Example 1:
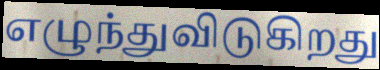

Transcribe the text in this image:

எழுந்துவிடுகிறது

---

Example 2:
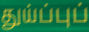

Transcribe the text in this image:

துய்ப்புப்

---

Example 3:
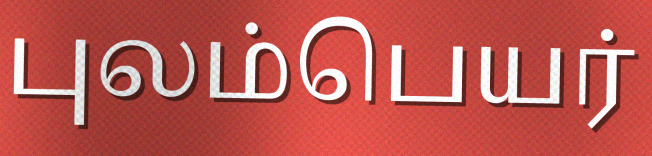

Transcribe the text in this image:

புலம்பெயர்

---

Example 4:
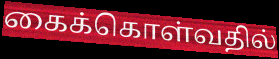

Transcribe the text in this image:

கைக்கொள்வதில்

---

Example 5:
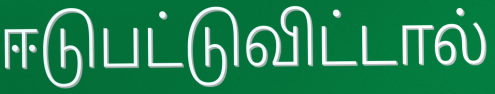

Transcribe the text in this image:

ஈடுபட்டுவிட்டால்